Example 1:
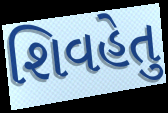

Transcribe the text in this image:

શિવહેતુ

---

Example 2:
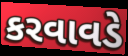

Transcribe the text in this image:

કરવાવડે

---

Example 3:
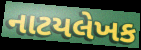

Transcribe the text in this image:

નાટયલેખક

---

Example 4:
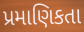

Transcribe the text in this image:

પ્રમાણિકતા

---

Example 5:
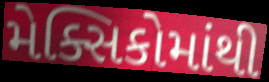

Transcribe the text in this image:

મેક્સિકોમાંથી